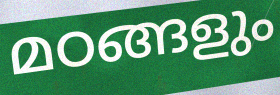
മഠങ്ങളും